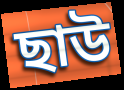
ছাউ